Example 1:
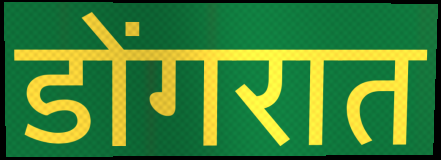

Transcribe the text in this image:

डोंगरात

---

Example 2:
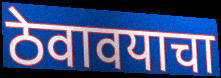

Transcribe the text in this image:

ठेवावयाचा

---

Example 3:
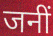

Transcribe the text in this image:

जनीं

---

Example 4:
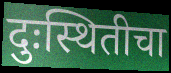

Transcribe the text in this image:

दुःस्थितीचा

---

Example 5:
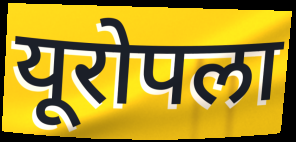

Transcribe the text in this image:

यूरोपला